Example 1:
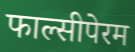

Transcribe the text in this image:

फाल्सीपेरम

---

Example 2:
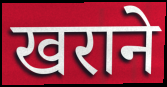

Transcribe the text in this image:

खराने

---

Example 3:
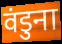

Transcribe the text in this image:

वंडुना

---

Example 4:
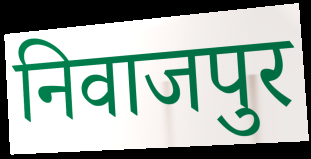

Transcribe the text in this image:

निवाजपुर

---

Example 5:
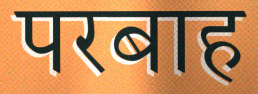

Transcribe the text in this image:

परबाह